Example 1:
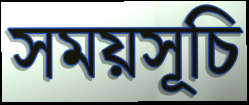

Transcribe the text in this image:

সময়সূচি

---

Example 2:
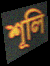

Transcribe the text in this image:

শূলি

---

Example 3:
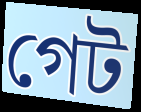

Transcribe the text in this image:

গেট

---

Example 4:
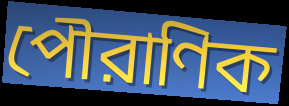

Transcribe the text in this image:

পৌরাণিক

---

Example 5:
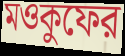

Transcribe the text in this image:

মওকুফের